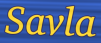
Savla